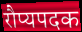
रौप्यपदक